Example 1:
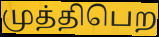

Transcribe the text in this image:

முத்திபெற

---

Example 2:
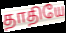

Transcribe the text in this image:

தாதியே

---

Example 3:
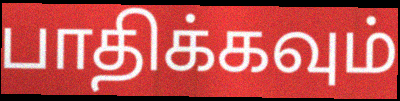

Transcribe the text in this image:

பாதிக்கவும்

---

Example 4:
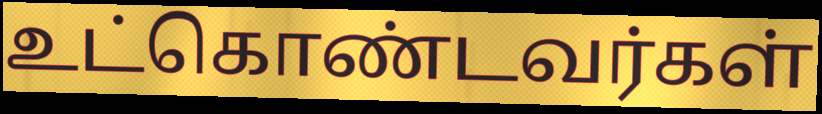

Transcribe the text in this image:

உட்கொண்டவர்கள்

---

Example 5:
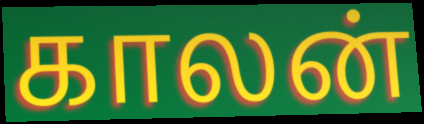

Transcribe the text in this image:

காலன்